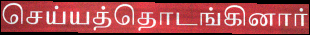
செய்யத்தொடங்கினார்